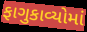
ફાગુકાવ્યોમાં